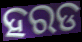
ହରଡ